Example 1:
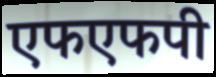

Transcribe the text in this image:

एफएफपी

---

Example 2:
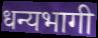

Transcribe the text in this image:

धन्यभागी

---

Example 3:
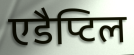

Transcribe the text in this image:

एडैप्टिल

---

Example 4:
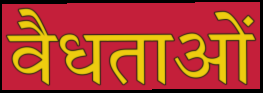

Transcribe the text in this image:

वैधताओं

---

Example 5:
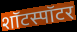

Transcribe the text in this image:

शॉटस्पॉटर